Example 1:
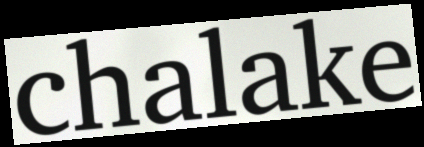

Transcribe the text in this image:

chalake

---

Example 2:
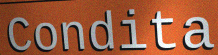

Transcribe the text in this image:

Condita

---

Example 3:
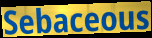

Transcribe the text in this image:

Sebaceous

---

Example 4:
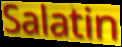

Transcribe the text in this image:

Salatin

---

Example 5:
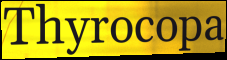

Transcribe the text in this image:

Thyrocopa